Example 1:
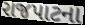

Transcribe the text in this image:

રાજપાટના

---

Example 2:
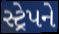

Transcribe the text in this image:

સ્ટ્રેપને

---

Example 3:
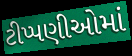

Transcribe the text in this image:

ટીપ્પણીઓમાં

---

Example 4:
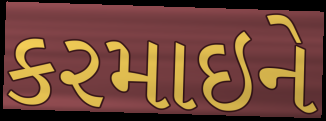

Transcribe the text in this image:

કરમાઇને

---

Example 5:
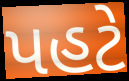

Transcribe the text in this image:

પહટે